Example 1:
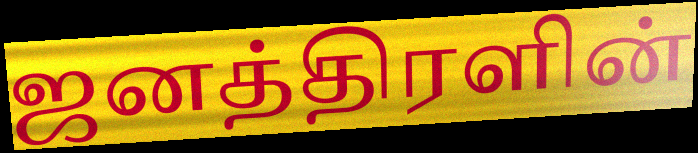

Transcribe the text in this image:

ஜனத்திரளின்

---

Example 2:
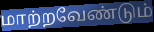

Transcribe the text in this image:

மாற்றவேண்டும்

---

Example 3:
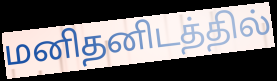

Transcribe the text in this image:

மனிதனிடத்தில்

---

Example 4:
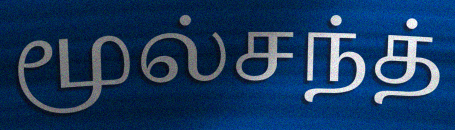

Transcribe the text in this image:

மூல்சந்த்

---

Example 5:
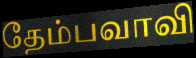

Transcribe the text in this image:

தேம்பவாவி